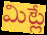
మిట్లే